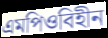
এমপিওবিহীন